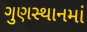
ગુણસ્થાનમાં